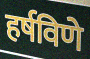
हर्षविणे